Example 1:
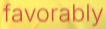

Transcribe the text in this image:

favorably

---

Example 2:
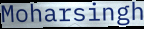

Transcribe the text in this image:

Moharsingh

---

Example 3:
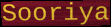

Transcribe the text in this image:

Sooriya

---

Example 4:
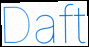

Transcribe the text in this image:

Daft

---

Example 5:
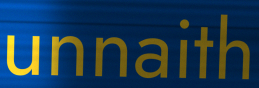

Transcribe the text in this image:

unnaith